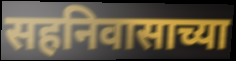
सहनिवासाच्या